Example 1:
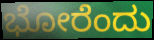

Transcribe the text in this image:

ಭೋರೆಂದು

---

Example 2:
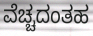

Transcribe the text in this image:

ವೆಚ್ಚದಂತಹ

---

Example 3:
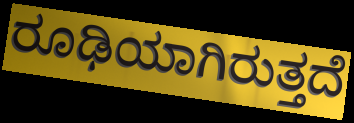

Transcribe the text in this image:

ರೂಢಿಯಾಗಿರುತ್ತದೆ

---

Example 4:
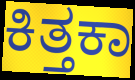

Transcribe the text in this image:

ಕಿತ್ತಕಾ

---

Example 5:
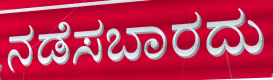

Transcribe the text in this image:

ನಡೆಸಬಾರದು